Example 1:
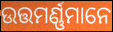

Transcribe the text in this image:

ଉତ୍ତମର୍ଣ୍ଣମାନେ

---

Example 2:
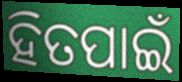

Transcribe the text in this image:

ହିତପାଇଁ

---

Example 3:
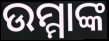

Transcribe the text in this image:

ଉମ୍ମାଙ୍କ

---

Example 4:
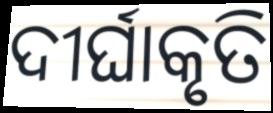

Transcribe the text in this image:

ଦୀର୍ଘାକୃତି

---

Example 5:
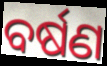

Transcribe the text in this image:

ବର୍ଷଣ